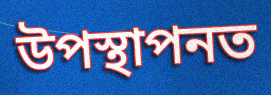
উপস্থাপনত